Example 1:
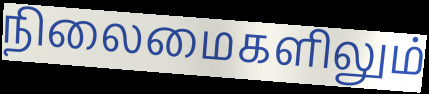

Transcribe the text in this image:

நிலைமைகளிலும்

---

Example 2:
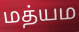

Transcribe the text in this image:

மத்யம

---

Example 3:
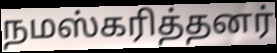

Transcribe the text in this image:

நமஸ்கரித்தனர்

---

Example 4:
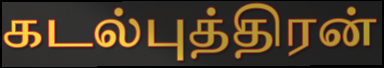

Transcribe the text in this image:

கடல்புத்திரன்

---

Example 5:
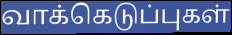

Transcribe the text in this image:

வாக்கெடுப்புகள்